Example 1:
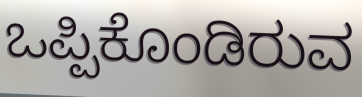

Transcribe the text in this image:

ಒಪ್ಪಿಕೊಂಡಿರುವ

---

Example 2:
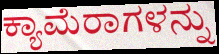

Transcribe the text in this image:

ಕ್ಯಾಮೆರಾಗಳನ್ನು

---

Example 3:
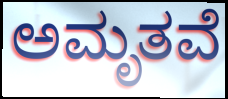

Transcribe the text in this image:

ಅಮೃತವೆ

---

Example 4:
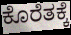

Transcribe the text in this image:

ಕೊರೆತಕ್ಕೆ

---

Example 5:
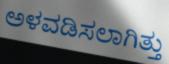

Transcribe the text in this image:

ಅಳವಡಿಸಲಾಗಿತ್ತು